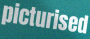
picturised